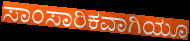
ಸಾಂಸಾರಿಕವಾಗಿಯೂ